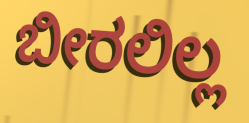
ಬೀರಲಿಲ್ಲ